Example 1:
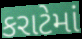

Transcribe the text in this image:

કરાટેમાં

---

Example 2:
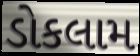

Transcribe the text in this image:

ડોકલામ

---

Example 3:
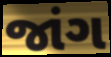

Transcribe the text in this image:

જાંગ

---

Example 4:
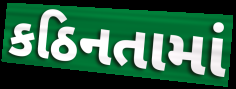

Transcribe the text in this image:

કઠિનતામાં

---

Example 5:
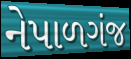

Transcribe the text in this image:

નેપાળગંજ